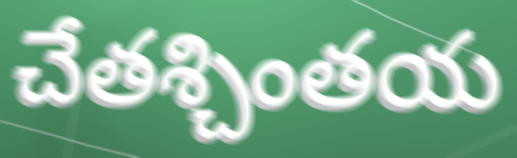
చేతశ్చింతయ